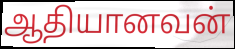
ஆதியானவன்